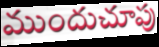
ముందుచూపు